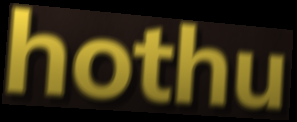
hothu